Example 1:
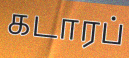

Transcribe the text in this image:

கடாரப்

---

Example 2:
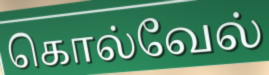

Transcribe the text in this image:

கொல்வேல்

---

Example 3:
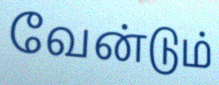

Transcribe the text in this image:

வேன்டும்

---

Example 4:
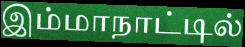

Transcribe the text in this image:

இம்மாநாட்டில்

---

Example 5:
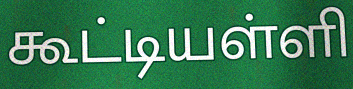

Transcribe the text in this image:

கூட்டியள்ளி